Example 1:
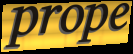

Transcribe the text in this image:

prope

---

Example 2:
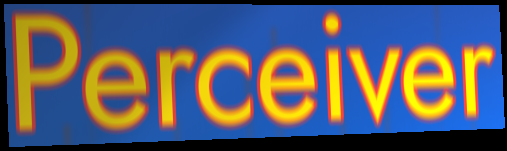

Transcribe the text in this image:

Perceiver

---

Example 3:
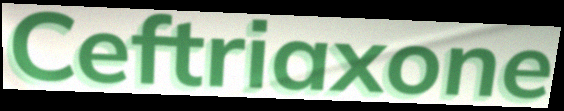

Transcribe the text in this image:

Ceftriaxone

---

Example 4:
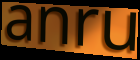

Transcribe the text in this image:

anru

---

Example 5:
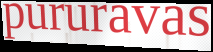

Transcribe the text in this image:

pururavas